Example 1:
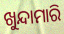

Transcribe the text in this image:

ଖୁନ୍ଦାମାରି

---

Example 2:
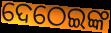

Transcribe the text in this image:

ଦେଠେଇଙ୍କ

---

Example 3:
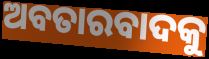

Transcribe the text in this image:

ଅବତାରବାଦକୁ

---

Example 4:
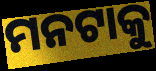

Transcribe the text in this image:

ମନଟାକୁ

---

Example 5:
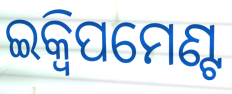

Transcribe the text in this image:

ଇକ୍ୱିପମେଣ୍ଟ